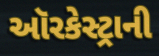
ઑરકેસ્ટ્રાની